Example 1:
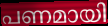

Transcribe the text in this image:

പണമായി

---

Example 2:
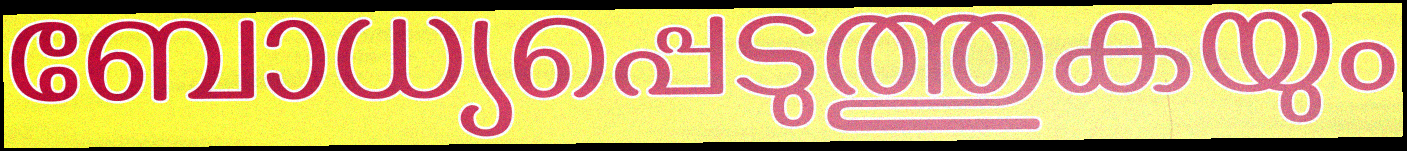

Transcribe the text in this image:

ബോധ്യപ്പെടുത്തുകയും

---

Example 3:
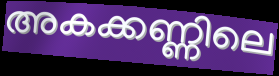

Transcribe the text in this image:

അകക്കണ്ണിലെ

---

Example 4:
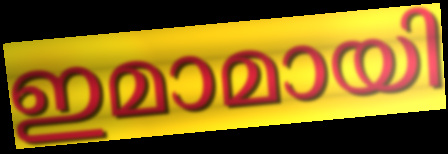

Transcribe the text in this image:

ഇമാമായി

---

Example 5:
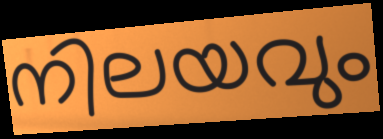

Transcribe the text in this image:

നിലയവും